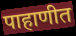
पाहाणीत